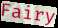
Fairy